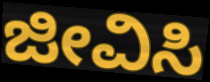
ಜೀವಿಸಿ